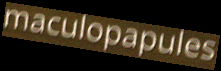
maculopapules